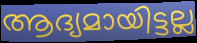
ആദ്യമായിട്ടല്ല